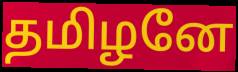
தமிழனே